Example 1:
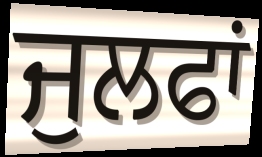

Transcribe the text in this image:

ਜੁਲਫਾਂ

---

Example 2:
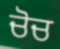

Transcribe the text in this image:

ਚੋਚ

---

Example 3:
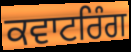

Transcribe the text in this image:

ਕਵਾਟਰਿੰਗ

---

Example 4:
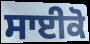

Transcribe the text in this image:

ਸਾਈਕੋ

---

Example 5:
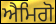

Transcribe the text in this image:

ਐਮਿਗੋ